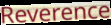
Reverence